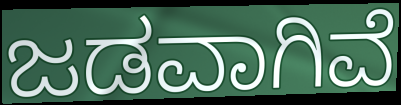
ಜಡವಾಗಿವೆ